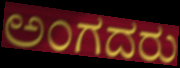
ಅಂಗದರು